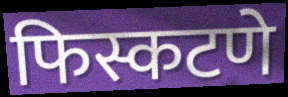
फिस्कटणे